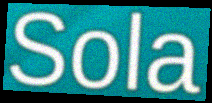
Sola